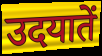
उदयातें